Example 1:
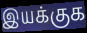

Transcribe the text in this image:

இயக்குக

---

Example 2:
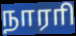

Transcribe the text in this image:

நாரரி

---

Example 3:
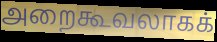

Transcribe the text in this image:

அறைகூவலாகக்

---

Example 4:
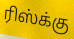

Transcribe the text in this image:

ரிஸ்க்கு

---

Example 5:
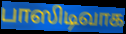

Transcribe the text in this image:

பாஸிடிவாக